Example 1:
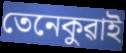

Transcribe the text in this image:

তেনেকুৱাই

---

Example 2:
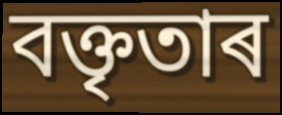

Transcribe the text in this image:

বক্তৃতাৰ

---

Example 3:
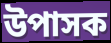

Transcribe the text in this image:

উপাসক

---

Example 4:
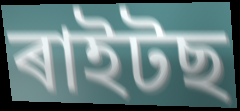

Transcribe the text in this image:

ৰাইটছ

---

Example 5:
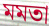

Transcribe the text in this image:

মমতা